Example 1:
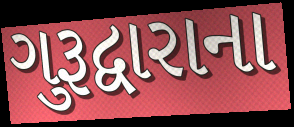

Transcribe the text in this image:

ગુરૂદ્વારાના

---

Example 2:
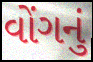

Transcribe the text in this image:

વોંગનું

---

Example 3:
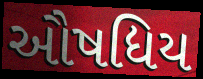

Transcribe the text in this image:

ઔષદ્યિય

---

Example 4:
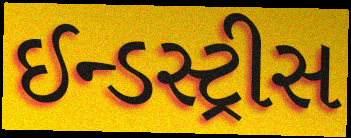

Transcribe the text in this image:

ઈન્ડસ્ટ્રીસ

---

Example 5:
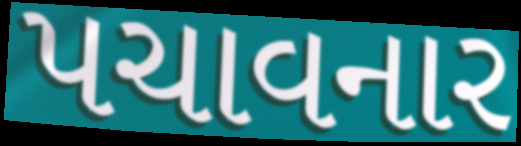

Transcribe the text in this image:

પચાવનાર